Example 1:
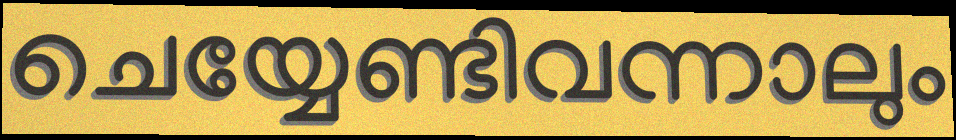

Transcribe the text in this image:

ചെയ്യേണ്ടിവന്നാലും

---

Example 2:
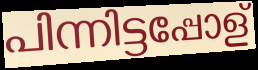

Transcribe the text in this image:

പിന്നിട്ടപ്പോള്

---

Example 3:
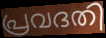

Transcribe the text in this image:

പ്രവദതി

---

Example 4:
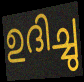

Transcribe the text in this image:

ഉദിച്ചു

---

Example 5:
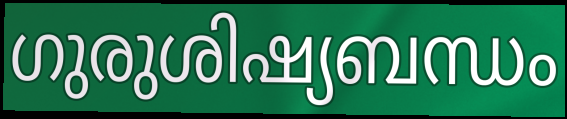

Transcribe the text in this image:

ഗുരുശിഷ്യബന്ധം